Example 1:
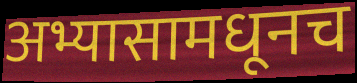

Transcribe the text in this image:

अभ्यासामधूनच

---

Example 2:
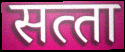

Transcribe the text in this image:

सत्‍ता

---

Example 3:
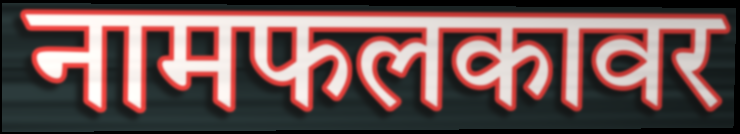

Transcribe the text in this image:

नामफलकावर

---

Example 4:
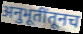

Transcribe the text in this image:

अनुभूतींतूनच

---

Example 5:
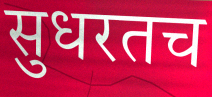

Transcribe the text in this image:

सुधरतच